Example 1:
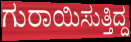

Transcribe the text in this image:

ಗುರಾಯಿಸುತ್ತಿದ್ದ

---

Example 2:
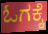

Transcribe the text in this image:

ಓಗಕ್ಕೆ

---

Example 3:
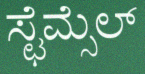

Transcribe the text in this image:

ಸ್ಟೆಮ್ಸೆಲ್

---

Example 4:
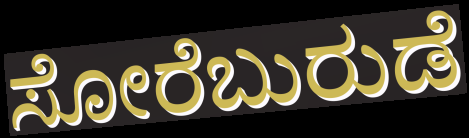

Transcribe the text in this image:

ಸೋರೆಬುರುಡೆ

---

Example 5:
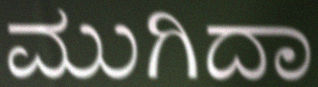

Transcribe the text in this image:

ಮುಗಿದಾ